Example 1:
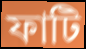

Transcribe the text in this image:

ফাটি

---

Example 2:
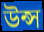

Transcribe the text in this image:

উন্স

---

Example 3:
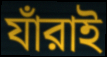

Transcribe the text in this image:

যাঁরাই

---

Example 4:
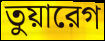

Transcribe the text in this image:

তুয়ারেগ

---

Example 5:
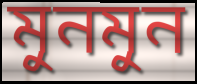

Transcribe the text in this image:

মুনমুন